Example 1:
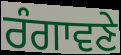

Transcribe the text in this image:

ਰੰਗਾਵਣੇ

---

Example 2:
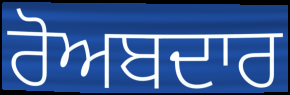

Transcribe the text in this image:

ਰੋਅਬਦਾਰ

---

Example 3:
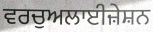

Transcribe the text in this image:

ਵਰਚੁਅਲਾਈਜ਼ੇਸ਼ਨ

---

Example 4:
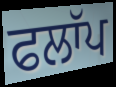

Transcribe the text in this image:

ਫਲਾੱਪ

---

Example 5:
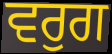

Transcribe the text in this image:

ਵਰੁਗ